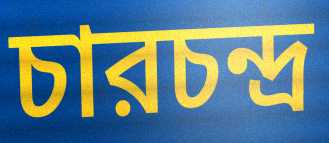
চারচন্দ্র